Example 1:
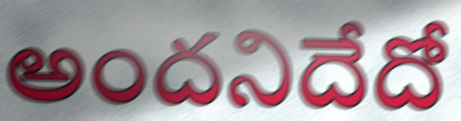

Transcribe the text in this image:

అందనిదేదో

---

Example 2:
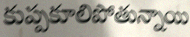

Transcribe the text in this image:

కుప్పకూలిపోతున్నాయి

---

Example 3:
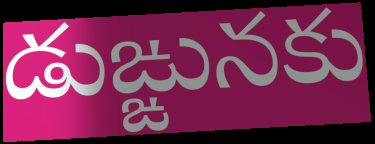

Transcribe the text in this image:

డుఙ్ఙునకు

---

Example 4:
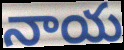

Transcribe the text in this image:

నాయ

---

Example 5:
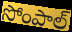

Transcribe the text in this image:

సోంపాల్